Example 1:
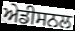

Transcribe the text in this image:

ਅੇਡੀਸਨਲ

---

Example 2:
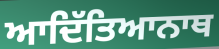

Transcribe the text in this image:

ਆਦਿੱਤਿਆਨਾਥ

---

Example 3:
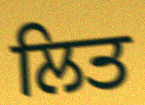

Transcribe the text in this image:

ਲਿਤ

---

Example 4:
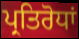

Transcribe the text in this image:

ਪ੍ਰਤਿਰੋਧਾਂ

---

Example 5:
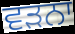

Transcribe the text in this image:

ਵੜਨਾ